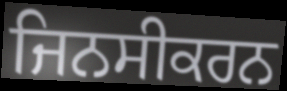
ਜਿਨਸੀਕਰਨ